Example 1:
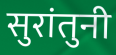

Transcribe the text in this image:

सुरांतुनी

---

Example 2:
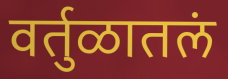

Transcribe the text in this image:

वर्तुळातलं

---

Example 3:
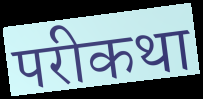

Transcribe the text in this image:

परीकथा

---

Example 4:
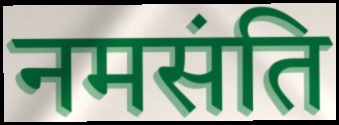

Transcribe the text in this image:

नमसंति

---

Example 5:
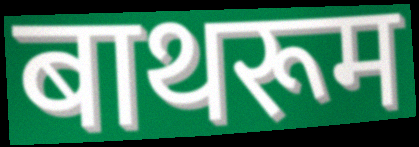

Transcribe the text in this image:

बाथरूम